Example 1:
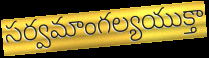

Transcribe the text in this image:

సర్వమాంగల్యయుక్తా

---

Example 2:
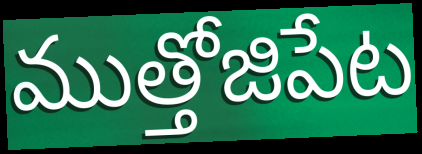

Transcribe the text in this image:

ముత్తోజిపేట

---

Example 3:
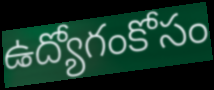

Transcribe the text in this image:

ఉద్యోగంకోసం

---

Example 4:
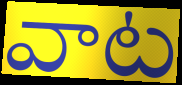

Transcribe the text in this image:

వాట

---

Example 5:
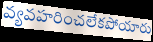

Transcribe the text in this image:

వ్యవహరించలేకపోయారు